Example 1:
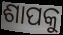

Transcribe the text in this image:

ଶାପକୁ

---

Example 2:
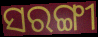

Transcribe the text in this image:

ସରଙ୍ଗୀ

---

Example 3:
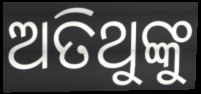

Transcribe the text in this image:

ଅତିଥୁଙ୍କୁ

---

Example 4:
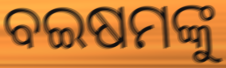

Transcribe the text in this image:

ବଇଷମଙ୍କୁ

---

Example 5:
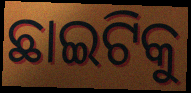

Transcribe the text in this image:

ଛାଇଟିକୁ